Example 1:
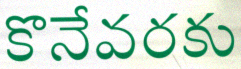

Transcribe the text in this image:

కొనేవరకు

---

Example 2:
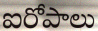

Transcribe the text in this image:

ఐరోపాలు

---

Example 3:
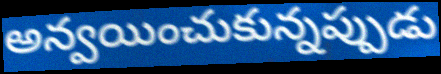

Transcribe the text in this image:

అన్వయించుకున్నప్పుడు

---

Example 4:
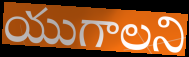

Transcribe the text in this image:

యుగాలని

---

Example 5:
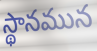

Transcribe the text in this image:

స్థానమున